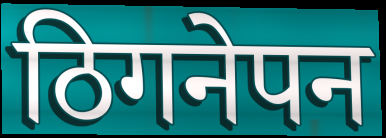
ठिगनेपन